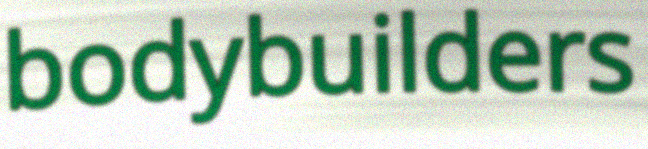
bodybuilders